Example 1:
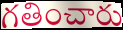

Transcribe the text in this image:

గతించారు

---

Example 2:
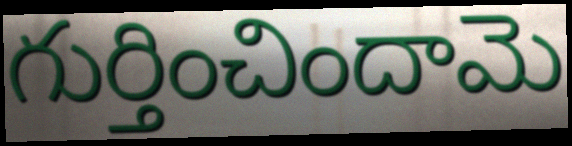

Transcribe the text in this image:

గుర్తించిందామె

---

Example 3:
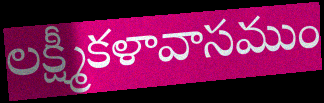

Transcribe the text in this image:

లక్ష్మీకళావాసముం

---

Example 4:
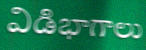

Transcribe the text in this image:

విడిభాగాలు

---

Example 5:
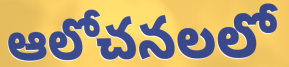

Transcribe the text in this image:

ఆలోచనలలో